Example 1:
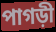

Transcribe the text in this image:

পাগড়ী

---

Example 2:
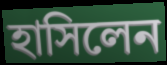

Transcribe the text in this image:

হাসিলেন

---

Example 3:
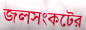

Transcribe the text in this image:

জলসংকটের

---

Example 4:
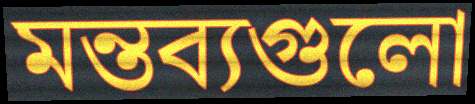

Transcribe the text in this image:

মন্তব্যগুলো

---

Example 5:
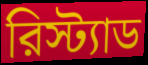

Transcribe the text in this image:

রিস্ট্যাড